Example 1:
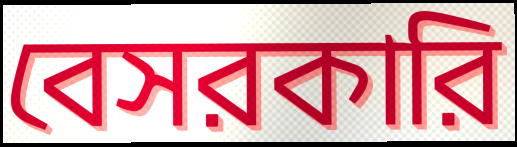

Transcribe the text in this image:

বেসরকারি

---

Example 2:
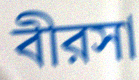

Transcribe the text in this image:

বীরসা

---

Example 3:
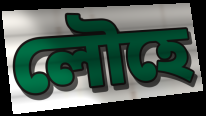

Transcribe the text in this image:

লৌহে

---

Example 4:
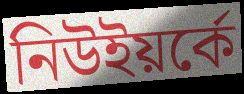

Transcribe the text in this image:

নিউইয়র্কে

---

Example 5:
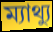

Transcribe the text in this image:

ম্যাথ্যু